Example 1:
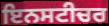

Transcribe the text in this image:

ਇਨਸਟੀਚਰ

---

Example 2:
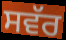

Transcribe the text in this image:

ਸਵੱਰ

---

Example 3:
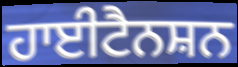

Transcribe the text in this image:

ਹਾਈਟੈਨਸ਼ਨ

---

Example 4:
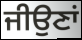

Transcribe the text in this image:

ਜੀਉਣਾਂ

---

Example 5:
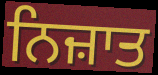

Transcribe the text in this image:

ਨਿਜ਼ਾਤ